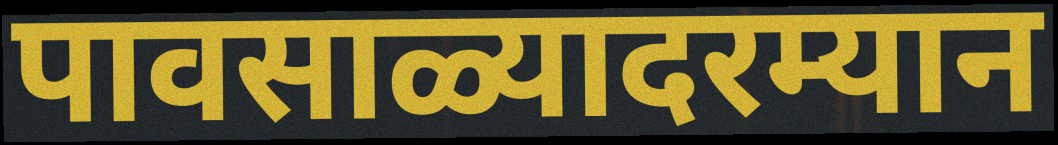
पावसाळ्यादरम्यान